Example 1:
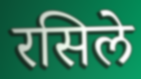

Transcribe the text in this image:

रसिले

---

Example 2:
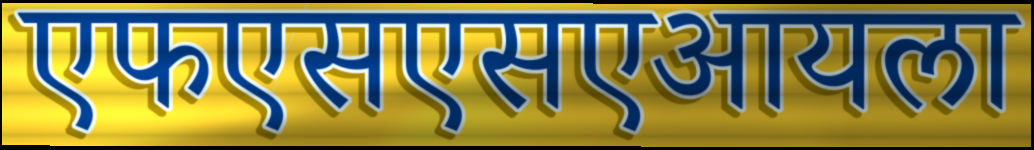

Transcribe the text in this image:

एफएसएसएआयला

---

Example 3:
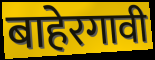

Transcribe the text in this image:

बाहेरगावी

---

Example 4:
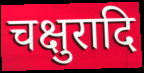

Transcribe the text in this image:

चक्षुरादि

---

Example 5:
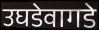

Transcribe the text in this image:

उघडेवागडे